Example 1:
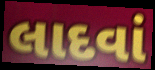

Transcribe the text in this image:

લાદવાં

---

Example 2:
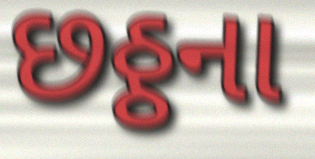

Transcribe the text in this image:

છઠ્ઠના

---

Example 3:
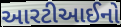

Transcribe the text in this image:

આરટીઆઈનો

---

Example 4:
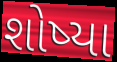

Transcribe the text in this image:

શોષ્યા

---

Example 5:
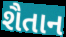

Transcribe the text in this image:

શૈતાન